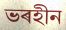
ভৰহীন